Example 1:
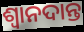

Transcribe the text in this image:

ଶ୍ଵାନଦାନ୍ତ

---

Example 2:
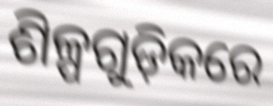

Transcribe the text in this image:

ଶିଳ୍ପଗୁଡ଼ିକରେ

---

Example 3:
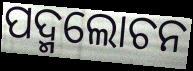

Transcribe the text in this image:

ପଦ୍ମଲୋଚନ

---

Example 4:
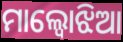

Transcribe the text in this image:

ମାଲ୍ବୋଝିଆ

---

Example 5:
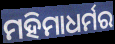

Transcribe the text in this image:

ମହିମାଧର୍ମର